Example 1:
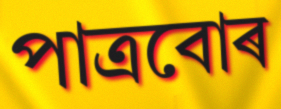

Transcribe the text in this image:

পাত্ৰবোৰ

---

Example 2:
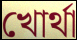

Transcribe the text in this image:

খোৰ্থা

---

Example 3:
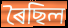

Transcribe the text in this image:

ৰৈছিল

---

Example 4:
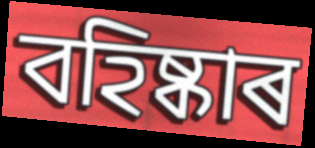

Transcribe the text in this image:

বহিষ্কাৰ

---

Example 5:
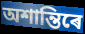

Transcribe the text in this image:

অশান্তিৰে